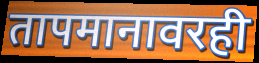
तापमानावरही